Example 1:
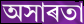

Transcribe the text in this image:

অসাৰতা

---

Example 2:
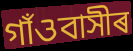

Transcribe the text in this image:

গাঁওবাসীৰ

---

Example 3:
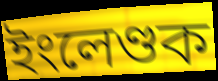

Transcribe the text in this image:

ইংলেণ্ডক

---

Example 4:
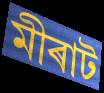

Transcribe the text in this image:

মীৰাট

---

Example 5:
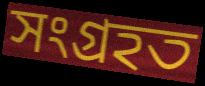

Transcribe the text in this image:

সংগ্ৰহত